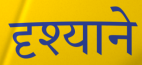
दृश्याने